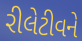
રીલેટીવને